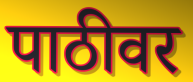
पाठीवर